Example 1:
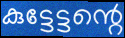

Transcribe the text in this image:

കുട്ടേട്ടന്റെ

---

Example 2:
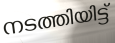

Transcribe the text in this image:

നടത്തിയിട്ട്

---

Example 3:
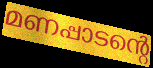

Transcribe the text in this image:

മണപ്പാടന്റെ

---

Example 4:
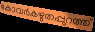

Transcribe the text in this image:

കോവർകഴുതപ്പുറത്ത്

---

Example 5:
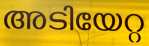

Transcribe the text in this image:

അടിയേറ്റ